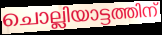
ചൊല്ലിയാട്ടത്തിന്